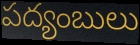
పద్యంబులు